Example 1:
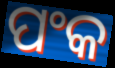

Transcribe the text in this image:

ପଂକ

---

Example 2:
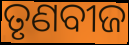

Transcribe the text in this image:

ତୃଣବୀଜ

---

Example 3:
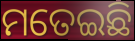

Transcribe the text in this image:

ମତେଇଛି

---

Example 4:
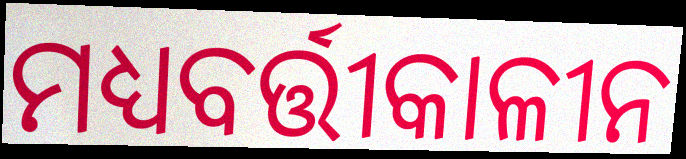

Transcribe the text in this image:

ମଧ୍ୟବର୍ତ୍ତୀକାଳୀନ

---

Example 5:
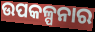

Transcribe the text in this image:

ଉପକଳ୍ପନାର